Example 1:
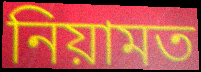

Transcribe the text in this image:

নিয়ামত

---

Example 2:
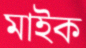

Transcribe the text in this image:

মাইক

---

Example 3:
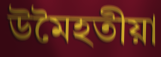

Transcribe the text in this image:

উমৈহতীয়া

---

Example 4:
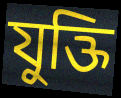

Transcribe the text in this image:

যুক্তি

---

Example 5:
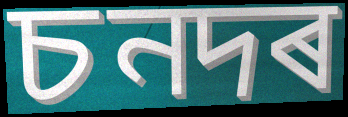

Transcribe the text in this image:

চনদৰ